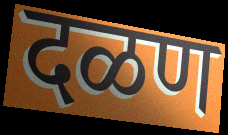
दळण